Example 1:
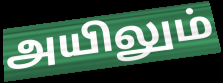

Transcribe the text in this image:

அயிலும்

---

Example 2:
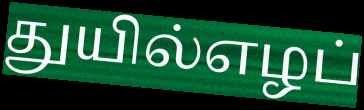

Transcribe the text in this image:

துயில்எழப்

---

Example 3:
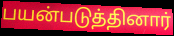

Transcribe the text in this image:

பயன்படுத்தினார்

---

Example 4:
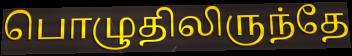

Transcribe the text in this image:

பொழுதிலிருந்தே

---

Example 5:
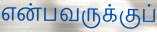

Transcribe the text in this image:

என்பவருக்குப்